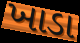
ખાડા